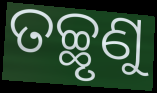
ତଚ୍ଛୃଣୁ